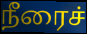
நீரைச்